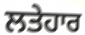
ਲਤੇਹਾਰ